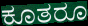
ಕೂತರೂ